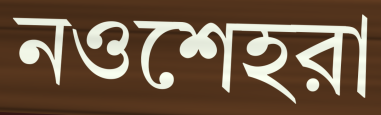
নওশেহরা